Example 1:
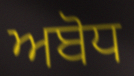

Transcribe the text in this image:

ਅਬੋਧ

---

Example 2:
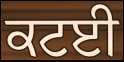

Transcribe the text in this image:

ਕਟਈ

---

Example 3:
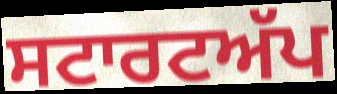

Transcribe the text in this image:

ਸਟਾਰਟਅੱਪ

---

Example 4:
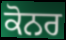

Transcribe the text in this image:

ਕੋਨਰ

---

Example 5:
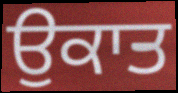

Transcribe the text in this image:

ਉਕਾਤ